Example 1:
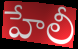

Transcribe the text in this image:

హేలీ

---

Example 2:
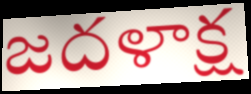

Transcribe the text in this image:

జదళాక్ష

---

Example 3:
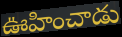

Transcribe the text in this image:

ఊహించాడు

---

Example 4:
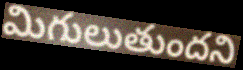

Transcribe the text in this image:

మిగులుతుందని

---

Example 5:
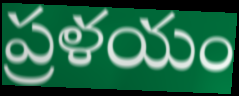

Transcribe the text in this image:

ప్రళయం